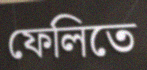
ফেলিতে